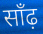
साँढ़